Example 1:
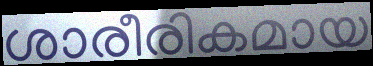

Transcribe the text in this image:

ശാരീരികമായ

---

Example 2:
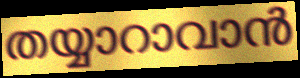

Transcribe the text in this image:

തയ്യാറാവാൻ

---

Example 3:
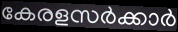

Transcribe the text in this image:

കേരളസർക്കാർ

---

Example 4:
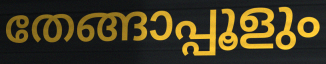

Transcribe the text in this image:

തേങ്ങാപ്പൂളും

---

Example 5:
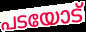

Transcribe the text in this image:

പടയോട്